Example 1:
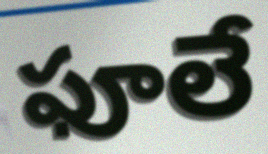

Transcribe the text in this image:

ఫూలే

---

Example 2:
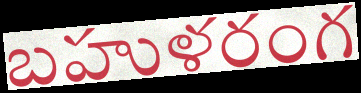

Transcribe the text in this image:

బహుళరంగ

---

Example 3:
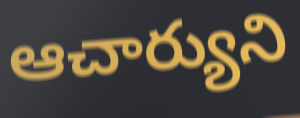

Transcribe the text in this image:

ఆచార్యుని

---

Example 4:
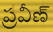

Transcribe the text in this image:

ప్రవీణ్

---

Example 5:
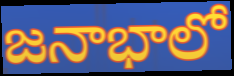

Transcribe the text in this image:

జనాభాలో